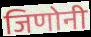
जिणोनी